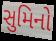
સુમિનો